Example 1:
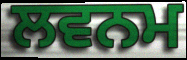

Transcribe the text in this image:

ਲਵਨਮ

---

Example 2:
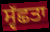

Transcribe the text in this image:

ਸ੍ਵੱਛਤਾ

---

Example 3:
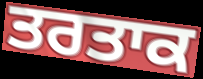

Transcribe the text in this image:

ਤਰਤਾਕ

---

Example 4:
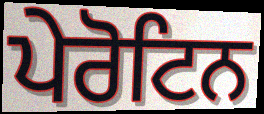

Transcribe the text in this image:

ਪੇਰੋਟਿਨ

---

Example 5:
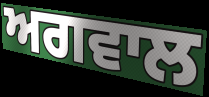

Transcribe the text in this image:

ਅਗਵਾਲ